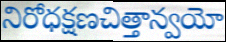
నిరోధక్షణచిత్తాన్వయో